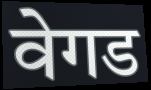
वेगड